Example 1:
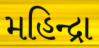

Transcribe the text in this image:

મહિન્દ્રા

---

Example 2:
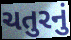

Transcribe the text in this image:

ચતુરનું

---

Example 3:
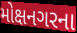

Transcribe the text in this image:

મોક્ષનગરના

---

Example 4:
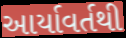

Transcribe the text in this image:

આર્યાવર્તથી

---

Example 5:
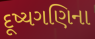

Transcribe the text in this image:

દૂષ્યગણિના